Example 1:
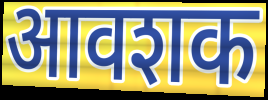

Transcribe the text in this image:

आवशक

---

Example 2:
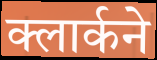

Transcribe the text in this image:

क्लार्कने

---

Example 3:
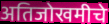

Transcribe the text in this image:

अतिजोखमीचे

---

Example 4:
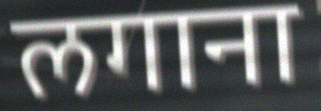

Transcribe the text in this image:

लगाना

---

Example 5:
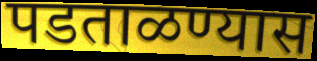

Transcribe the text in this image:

पडताळण्यास